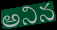
అనిన